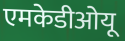
एमकेडीओयू